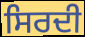
ਸਿਰਦੀ